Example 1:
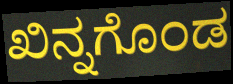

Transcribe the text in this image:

ಖಿನ್ನಗೊಂಡ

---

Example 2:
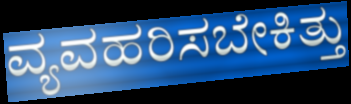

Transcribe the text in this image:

ವ್ಯವಹರಿಸಬೇಕಿತ್ತು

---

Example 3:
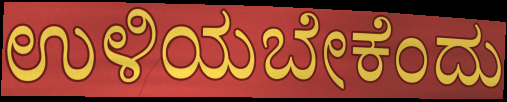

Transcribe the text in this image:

ಉಳಿಯಬೇಕೆಂದು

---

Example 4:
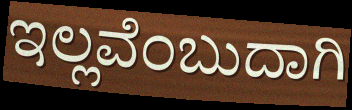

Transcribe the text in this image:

ಇಲ್ಲವೆಂಬುದಾಗಿ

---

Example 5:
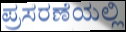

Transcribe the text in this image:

ಪ್ರಸರಣೆಯಲ್ಲಿ